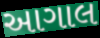
આગાલ